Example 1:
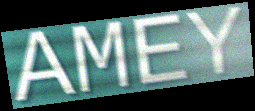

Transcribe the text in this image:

AMEY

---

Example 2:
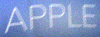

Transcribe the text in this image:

APPLE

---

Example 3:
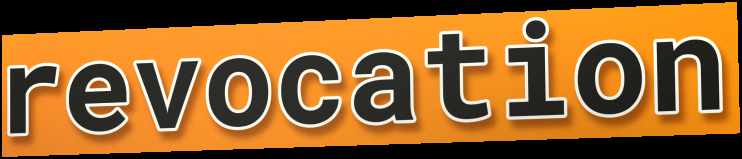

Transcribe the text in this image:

revocation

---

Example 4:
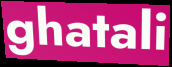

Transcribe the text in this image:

ghatali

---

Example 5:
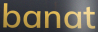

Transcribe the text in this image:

banat